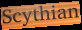
Scythian